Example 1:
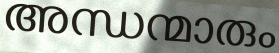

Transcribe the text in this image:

അന്ധന്മാരും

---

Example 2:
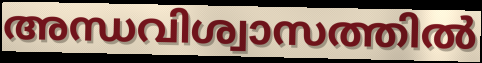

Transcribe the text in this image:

അന്ധവിശ്വാസത്തിൽ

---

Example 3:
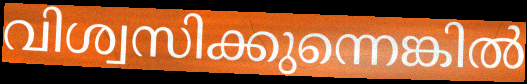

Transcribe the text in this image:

വിശ്വസിക്കുന്നെങ്കിൽ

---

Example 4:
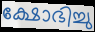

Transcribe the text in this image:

ക്ഷോഭിച്ചു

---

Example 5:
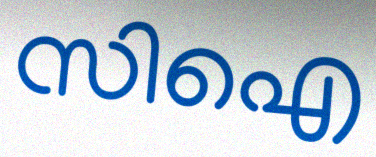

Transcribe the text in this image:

സിഐ